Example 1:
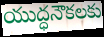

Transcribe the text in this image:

యుద్ధనౌకలకు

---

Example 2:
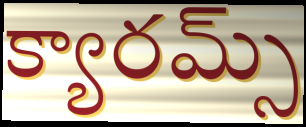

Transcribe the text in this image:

క్యారమ్స్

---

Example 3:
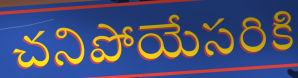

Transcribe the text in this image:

చనిపోయేసరికి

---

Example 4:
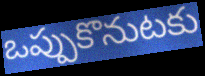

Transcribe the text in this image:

ఒప్పుకొనుటకు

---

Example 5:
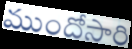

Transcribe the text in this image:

ముందోసారి